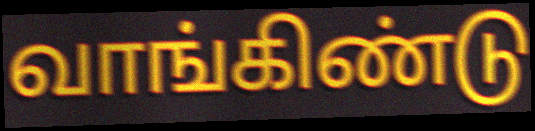
வாங்கிண்டு